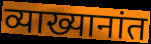
व्याख्यानांत